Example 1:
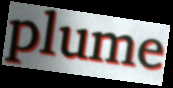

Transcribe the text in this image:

plume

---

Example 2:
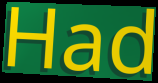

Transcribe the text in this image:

Had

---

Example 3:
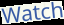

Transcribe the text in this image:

Watch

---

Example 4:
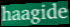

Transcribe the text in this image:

haagide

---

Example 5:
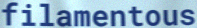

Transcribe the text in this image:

filamentous